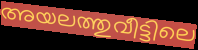
അയലത്തുവീട്ടിലെ